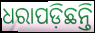
ଧରାପଡ଼ିଛନ୍ତି